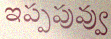
ఇప్పపువ్వు